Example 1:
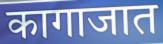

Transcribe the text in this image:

कागाजात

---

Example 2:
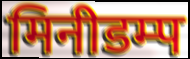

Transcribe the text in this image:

मिनीडम्प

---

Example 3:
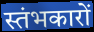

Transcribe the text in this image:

स्तंभकारों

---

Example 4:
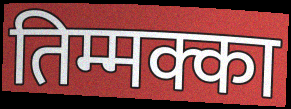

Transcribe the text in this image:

तिम्मक्का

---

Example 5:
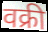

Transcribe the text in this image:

वक्री